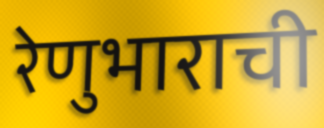
रेणुभाराची